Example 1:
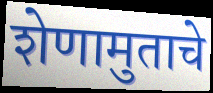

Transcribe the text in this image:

शेणामुताचे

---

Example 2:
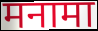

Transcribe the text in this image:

मनामा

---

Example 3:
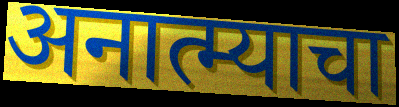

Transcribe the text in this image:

अनात्म्याचा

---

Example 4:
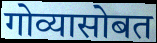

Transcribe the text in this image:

गोव्यासोबत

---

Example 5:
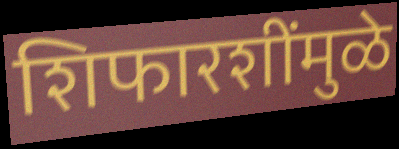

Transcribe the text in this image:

शिफारशींमुळे